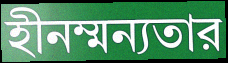
হীনম্মন্যতার